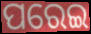
ପରେଇ